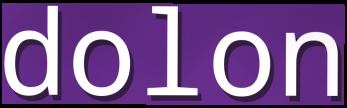
dolon